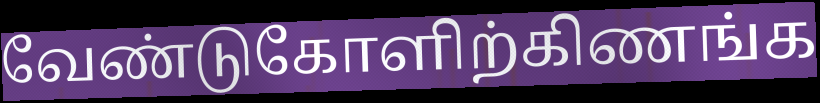
வேண்டுகோளிற்கிணங்க